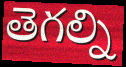
తెగల్ని